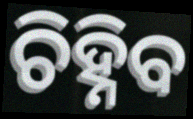
ଚିହ୍ନିବ